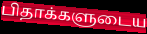
பிதாக்களுடைய